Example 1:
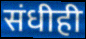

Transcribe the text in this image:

संधीही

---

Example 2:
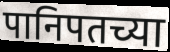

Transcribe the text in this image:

पानिपतच्या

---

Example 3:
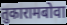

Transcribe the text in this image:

तुकारामबोवा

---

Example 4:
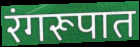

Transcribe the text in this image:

रंगरूपात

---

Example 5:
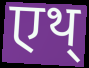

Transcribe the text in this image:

एथ्